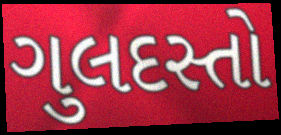
ગુલદસ્તો